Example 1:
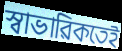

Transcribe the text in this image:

স্বাভাৱিকতেই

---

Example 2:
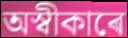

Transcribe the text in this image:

অস্বীকাৰে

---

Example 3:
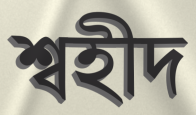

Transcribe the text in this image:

শ্বহীদ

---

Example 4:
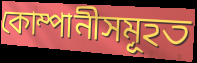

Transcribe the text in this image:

কোম্পানীসমূহত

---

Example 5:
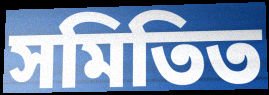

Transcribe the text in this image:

সমিতিত